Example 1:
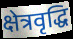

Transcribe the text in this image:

क्षेत्रवृद्धि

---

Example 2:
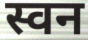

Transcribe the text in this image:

स्वन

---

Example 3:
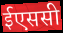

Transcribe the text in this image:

ईएससी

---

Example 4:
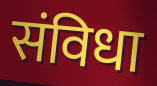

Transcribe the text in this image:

संविधा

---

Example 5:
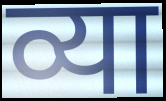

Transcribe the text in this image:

व्या